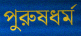
পুরুষধর্ম